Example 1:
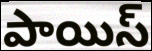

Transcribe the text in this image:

పాయిస్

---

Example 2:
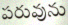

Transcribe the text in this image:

పరువును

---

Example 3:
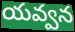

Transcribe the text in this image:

యవ్వన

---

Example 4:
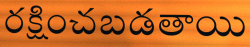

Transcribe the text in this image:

రక్షించబడతాయి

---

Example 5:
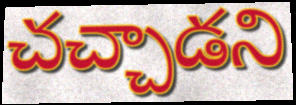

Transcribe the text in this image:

చచ్చాడని